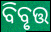
ବିବୃତ୍ତ